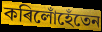
কৰিলোঁহেঁতেন